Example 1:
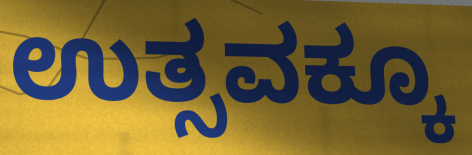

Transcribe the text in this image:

ಉತ್ಸವಕ್ಕೂ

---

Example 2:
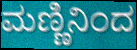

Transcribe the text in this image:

ಮಣ್ಣಿನಿಂದ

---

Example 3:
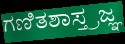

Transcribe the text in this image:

ಗಣಿತಶಾಸ್ತ್ರಜ್ಞ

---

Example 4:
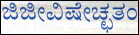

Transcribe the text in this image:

ಜಿಜೀವಿಷೇಚ್ಛತಂ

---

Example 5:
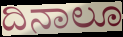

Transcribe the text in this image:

ದಿನಾಲೂ